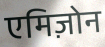
एमिज़ोन